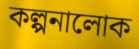
কল্পনালোক